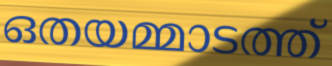
ഒതയമ്മാടത്ത്